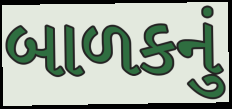
બાળકનું